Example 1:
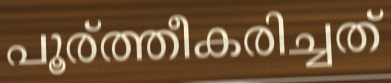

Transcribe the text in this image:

പൂര്ത്തീകരിച്ചത്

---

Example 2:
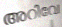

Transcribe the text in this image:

അറിവേ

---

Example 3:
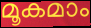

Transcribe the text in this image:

മൂകമാം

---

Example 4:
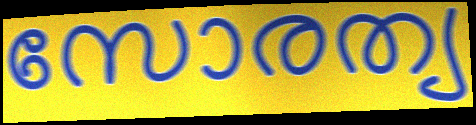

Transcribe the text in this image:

സോരത്യ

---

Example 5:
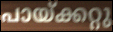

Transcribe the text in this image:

പായ്ക്കറ്റു